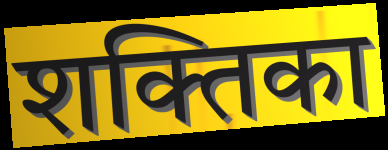
शक्तिका